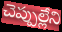
చెప్పుల్లేని